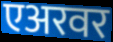
एअरवर